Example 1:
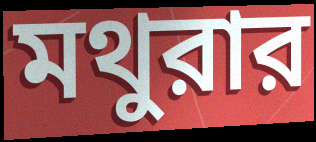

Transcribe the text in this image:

মথুরার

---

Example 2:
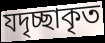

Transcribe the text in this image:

যদৃচ্ছাকৃত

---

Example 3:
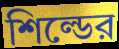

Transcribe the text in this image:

শিল্ডের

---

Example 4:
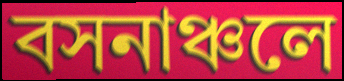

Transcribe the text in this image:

বসনাঞ্চলে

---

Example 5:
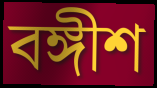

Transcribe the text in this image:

বঙ্গীশ